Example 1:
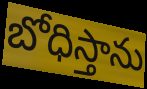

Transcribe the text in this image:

బోధిస్తాను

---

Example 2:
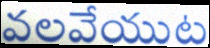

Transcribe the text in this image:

వలవేయుట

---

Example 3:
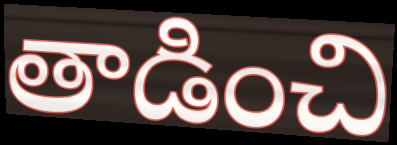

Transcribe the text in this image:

తాడించి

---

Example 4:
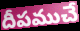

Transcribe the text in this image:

దీపముచే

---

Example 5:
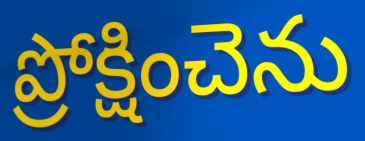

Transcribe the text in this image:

ప్రోక్షించెను